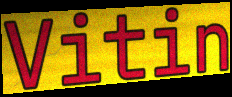
Vitin